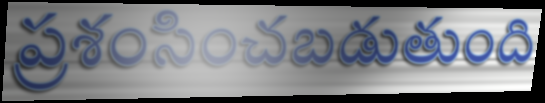
ప్రశంసించబడుతుంది